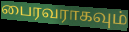
பைரவராகவும்